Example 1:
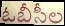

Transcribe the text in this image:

ఓబీసీల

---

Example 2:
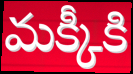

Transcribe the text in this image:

మక్కీకి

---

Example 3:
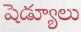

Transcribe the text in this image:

షెడ్యూలు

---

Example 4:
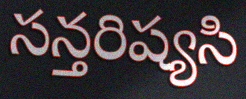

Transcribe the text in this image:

సన్తరిష్యసి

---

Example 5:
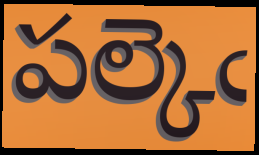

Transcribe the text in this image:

పల్కెఁ